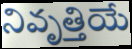
నివృత్తియే